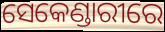
ସେକେଣ୍ଡାରୀରେ